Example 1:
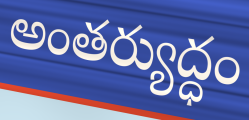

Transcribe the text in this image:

అంతర్యుద్ధం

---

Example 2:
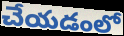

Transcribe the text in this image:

చేయడంలో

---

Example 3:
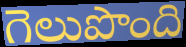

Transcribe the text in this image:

గెలుపొంది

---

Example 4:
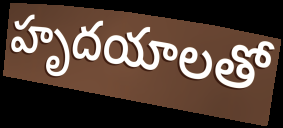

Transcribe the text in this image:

హృదయాలతో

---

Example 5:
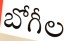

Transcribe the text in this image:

బోగీల